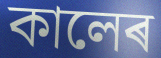
কালেৰ